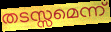
തടസ്സമെന്ന്